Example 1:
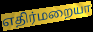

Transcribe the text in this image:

எதிர்மறையா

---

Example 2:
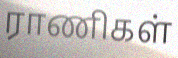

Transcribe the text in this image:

ராணிகள்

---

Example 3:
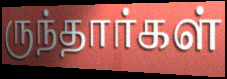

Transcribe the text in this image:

ருந்தார்கள்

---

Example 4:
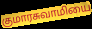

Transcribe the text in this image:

குமாரசுவாமியை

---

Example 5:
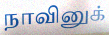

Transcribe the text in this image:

நாவினுக்